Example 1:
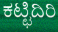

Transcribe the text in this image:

ಕಟ್ಟಿದಿರಿ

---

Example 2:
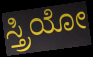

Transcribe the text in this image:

ಸ್ತ್ರಿಯೋ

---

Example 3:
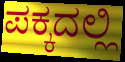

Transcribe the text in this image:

ಪಕ್ಕದಲ್ಲಿ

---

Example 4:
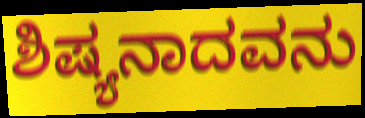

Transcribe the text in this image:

ಶಿಷ್ಯನಾದವನು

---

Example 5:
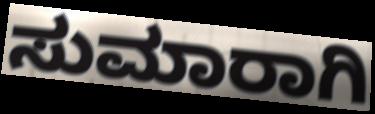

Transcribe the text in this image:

ಸುಮಾರಾಗಿ